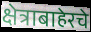
क्षेत्राबाहेरचे